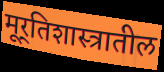
मूर्तिशास्त्रातील